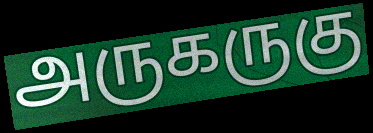
அருகருகு